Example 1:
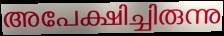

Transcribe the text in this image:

അപേക്ഷിച്ചിരുന്നു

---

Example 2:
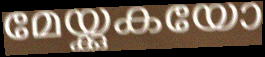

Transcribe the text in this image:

മേയ്ക്കുകയോ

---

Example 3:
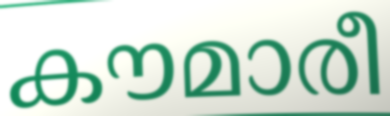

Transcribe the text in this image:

കൗമാരീ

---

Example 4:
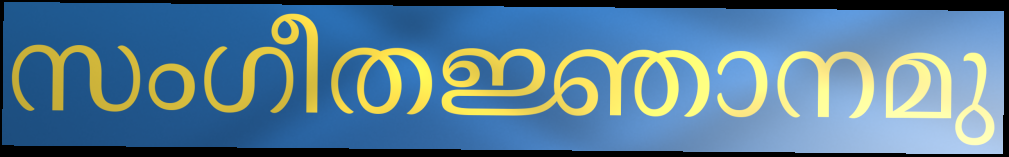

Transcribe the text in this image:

സംഗീതജ്ഞാനമു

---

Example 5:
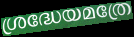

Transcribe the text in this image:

ശ്രദ്ധേയമത്രേ